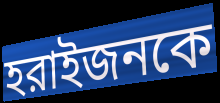
হরাইজনকে